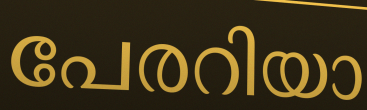
പേരറിയാ